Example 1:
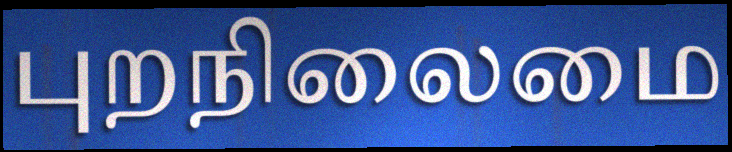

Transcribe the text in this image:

புறநிலைமை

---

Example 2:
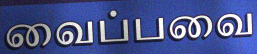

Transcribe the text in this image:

வைப்பவை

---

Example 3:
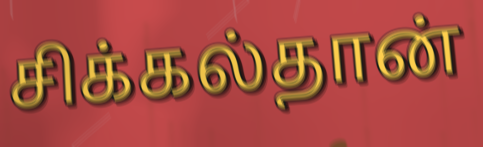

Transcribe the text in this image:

சிக்கல்தான்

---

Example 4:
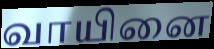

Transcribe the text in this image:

வாயினை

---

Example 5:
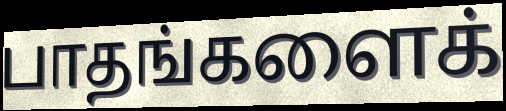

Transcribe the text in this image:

பாதங்களைக்